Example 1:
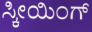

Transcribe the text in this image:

ಸ್ಕೀಯಿಂಗ್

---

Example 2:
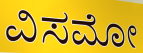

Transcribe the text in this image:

ವಿಸಮೋ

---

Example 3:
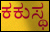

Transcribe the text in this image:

ಕಕುಸ್ಥ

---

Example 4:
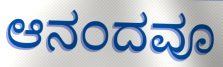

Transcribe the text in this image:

ಆನಂದವೂ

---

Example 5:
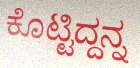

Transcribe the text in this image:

ಕೊಟ್ಟಿದ್ದನ್ನ